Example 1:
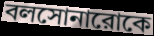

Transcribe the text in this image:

বলসোনারোকে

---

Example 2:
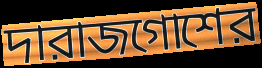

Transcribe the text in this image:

দারাজগোশের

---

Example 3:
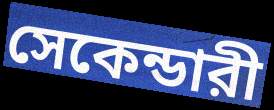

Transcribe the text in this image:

সেকেন্ডারী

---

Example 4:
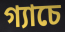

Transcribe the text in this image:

গ্যাচে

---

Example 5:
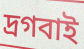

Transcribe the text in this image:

দ্রগবাই